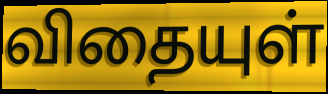
விதையுள்